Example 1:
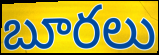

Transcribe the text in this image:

బూరలు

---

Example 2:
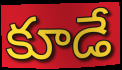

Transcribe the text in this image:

కూడే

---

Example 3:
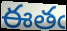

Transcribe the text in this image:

ఈతఁ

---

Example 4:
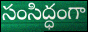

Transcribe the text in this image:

సంసిద్ధంగా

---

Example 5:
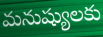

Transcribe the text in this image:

మనుష్యులకు